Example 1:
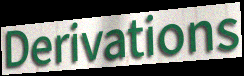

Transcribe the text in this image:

Derivations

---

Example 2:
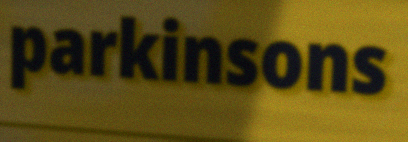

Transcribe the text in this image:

parkinsons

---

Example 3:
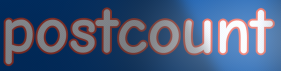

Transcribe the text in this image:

postcount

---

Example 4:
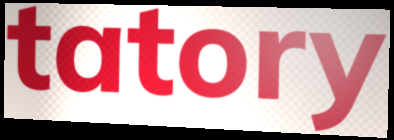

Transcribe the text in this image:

tatory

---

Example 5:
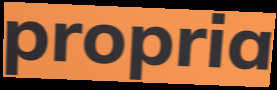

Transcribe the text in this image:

propria